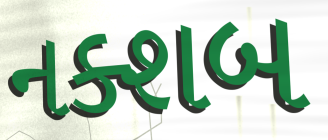
નક્શબ